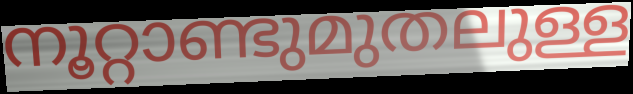
നൂറ്റാണ്ടുമുതലുള്ള